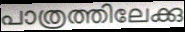
പാത്രത്തിലേക്കു